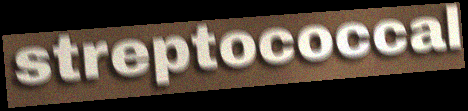
streptococcal